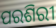
ପରଶିରୀ